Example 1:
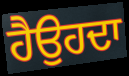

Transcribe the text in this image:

ਹੈਉਹਦਾ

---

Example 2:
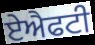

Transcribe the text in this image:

ਏਐਫਟੀ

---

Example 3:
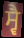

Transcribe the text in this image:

ਸ੍ਵੈ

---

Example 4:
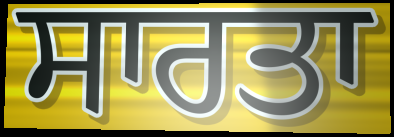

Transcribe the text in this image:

ਸਾਰਤਾ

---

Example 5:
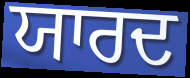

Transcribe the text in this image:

ਯਾਰਦ